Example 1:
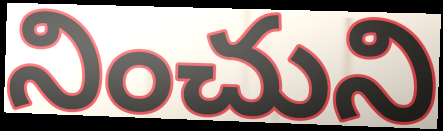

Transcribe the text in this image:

నించుని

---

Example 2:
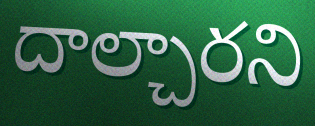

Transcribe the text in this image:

దాల్చారని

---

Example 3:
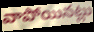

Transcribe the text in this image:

వాపోయినట్లు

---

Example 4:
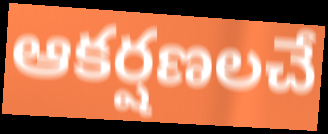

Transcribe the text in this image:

ఆకర్షణలచే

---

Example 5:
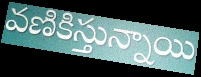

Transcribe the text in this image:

వణికిస్తున్నాయి